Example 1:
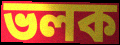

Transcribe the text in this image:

ভলক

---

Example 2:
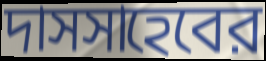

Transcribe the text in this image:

দাসসাহেবের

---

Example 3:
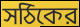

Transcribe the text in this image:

সঠিকের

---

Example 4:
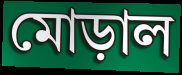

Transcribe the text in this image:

মোড়াল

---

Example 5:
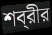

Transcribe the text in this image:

শব্‌রীর